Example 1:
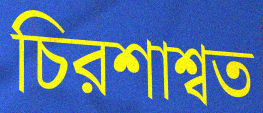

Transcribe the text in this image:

চিরশাশ্বত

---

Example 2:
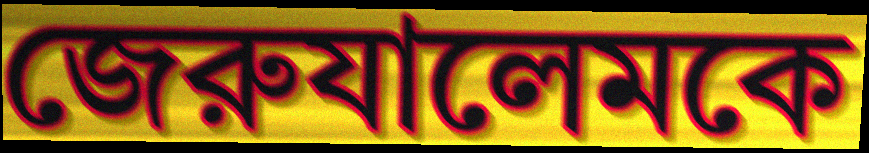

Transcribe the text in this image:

জেরুযালেমকে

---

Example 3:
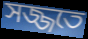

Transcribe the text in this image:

সজ্জতে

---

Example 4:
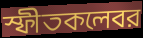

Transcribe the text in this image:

স্ফীতকলেবর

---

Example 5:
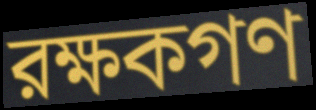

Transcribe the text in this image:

রক্ষকগণ